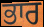
ਭਾਰ